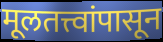
मूलतत्त्वांपासून